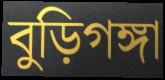
বুড়িগঙ্গা